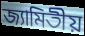
জ্যামিতীয়